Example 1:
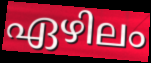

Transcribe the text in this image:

ഏഴിലം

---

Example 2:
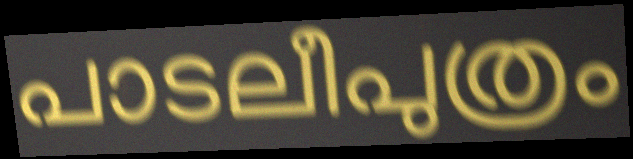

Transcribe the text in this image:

പാടലീപുത്രം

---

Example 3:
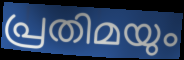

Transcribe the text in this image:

പ്രതിമയും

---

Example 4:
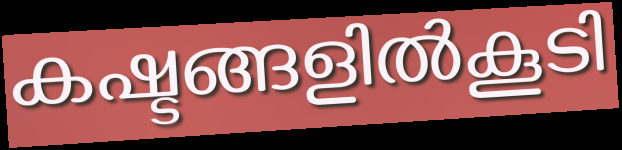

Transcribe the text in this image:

കഷ്ടങ്ങളിൽകൂടി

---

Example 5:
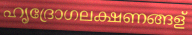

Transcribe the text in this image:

ഹൃദ്രോഗലക്ഷണങ്ങള്